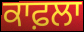
ਕਾਫ਼ਲਾ